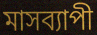
মাসব্যাপী